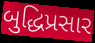
બુદ્ધિપ્રસાર